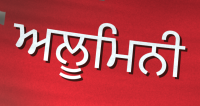
ਅਲੂਮਿਨੀ